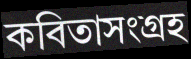
কবিতাসংগ্রহ